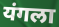
यंगला